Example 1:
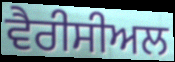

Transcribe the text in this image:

ਵੈਰੀਸੀਅਲ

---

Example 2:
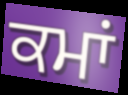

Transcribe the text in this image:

ਕਮਾਂ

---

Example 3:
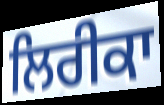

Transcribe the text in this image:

ਲਿਰੀਕਾ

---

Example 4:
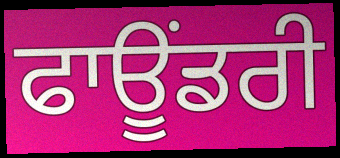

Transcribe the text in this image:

ਫਾਊਂਡਰੀ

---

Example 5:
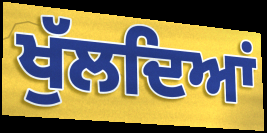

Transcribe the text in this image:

ਖੁੱਲਦਿਆਂ